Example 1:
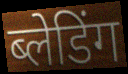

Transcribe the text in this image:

ब्लेडिंग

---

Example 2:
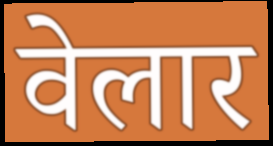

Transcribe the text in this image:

वेलार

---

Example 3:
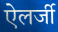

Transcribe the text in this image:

ऐलर्जी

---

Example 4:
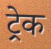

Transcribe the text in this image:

ट्रेक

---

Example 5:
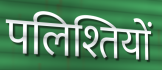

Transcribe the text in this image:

पलिश्तियों